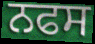
ਨਫਸ